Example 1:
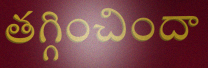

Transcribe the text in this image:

తగ్గించిందా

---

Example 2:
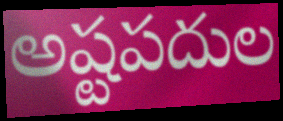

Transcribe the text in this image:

అష్టపదుల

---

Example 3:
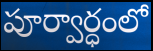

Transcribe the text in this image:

పూర్వార్ధంలో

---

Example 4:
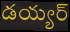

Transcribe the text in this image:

డయ్యర్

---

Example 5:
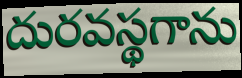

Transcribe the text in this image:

దురవస్థగాను